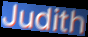
Judith